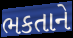
ભકતાને